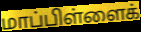
மாப்பிள்ளைக்